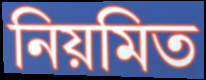
নিয়মিত